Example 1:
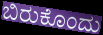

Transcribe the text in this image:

ಬಿರುಕೊಂದು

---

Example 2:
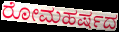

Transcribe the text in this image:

ರೋಮಹರ್ಷದ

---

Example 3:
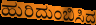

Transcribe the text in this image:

ಹುರಿದುಂಬಿಸಿದ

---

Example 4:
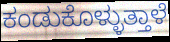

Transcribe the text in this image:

ಕಂಡುಕೊಳ್ಳುತ್ತಾಳೆ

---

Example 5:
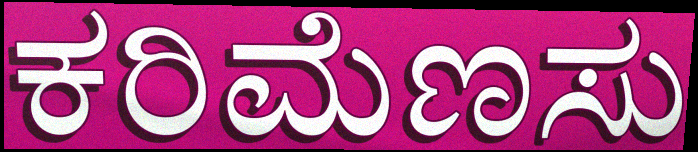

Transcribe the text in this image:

ಕರಿಮೆಣಸು